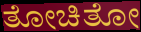
ತೋಚಿತೋ